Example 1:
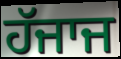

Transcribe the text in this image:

ਹੱਜਾਜ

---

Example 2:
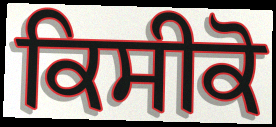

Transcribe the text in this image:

ਕਿਸੀਕੋ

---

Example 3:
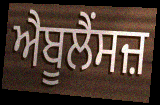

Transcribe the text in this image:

ਐਬੂਲੈਂਸਜ਼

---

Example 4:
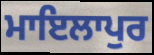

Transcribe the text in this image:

ਮਾਇਲਾਪੁਰ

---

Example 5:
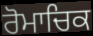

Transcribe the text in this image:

ਰੋਮਾਚਿਕ